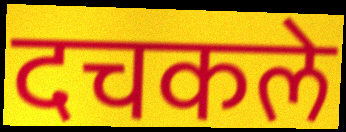
दचकले